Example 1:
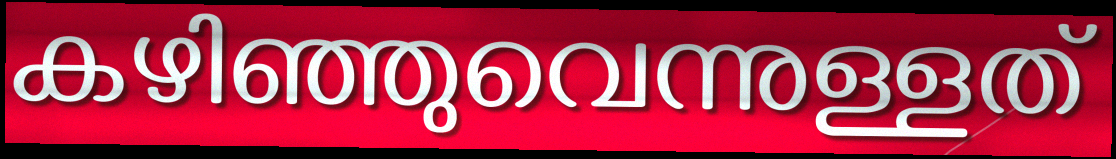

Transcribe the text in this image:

കഴിഞ്ഞുവെന്നുള്ളത്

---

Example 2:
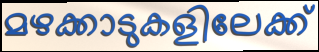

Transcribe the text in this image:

മഴക്കാടുകളിലേക്ക്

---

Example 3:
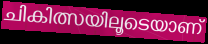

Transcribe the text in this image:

ചികിത്സയിലൂടെയാണ്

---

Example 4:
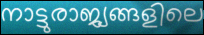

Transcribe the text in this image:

നാട്ടുരാജ്യങ്ങളിലെ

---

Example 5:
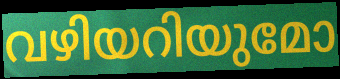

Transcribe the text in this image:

വഴിയറിയുമോ